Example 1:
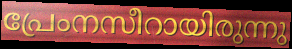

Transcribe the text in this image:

പ്രേംനസീറായിരുന്നു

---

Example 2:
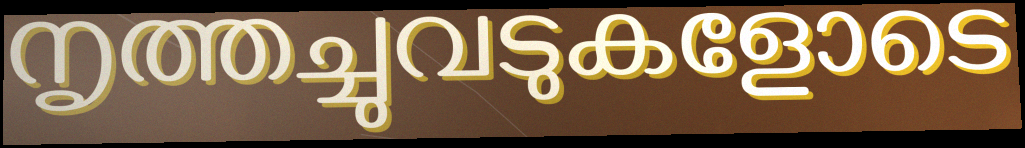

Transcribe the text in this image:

നൃത്തച്ചുവടുകളോടെ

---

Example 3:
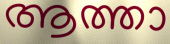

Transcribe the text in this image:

ആത്താ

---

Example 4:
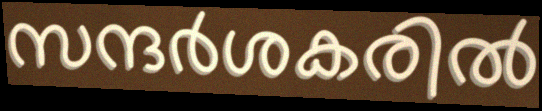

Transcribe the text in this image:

സന്ദർശകരിൽ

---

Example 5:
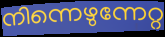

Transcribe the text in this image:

നിന്നെഴുന്നേറ്റ